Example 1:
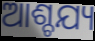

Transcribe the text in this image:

ଆଶ୍ଚଯ୍ୟ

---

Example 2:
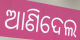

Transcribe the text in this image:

ଆଣିଦେଲ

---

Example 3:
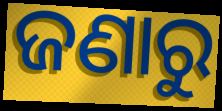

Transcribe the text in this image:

ଜଣାରୁ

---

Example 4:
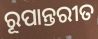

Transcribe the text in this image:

ରୂପାନ୍ତରୀତ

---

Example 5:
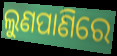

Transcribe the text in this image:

ଲୁଣପାଣିରେ